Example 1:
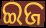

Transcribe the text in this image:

ଇଜ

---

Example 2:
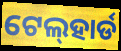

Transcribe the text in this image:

ଟେଲ୍‍ହାର୍ଡ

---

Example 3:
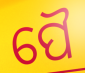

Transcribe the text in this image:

ପୈ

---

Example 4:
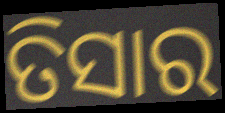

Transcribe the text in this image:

ତିସାର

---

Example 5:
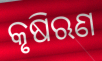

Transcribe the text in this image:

କୃଷିଋଣ